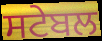
ਸਟੇਬਲ